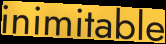
inimitable